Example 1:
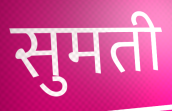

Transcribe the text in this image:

सुमती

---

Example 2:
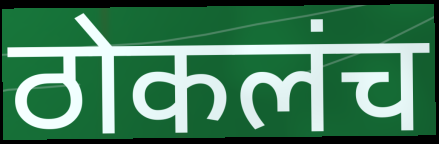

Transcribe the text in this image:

ठोकलंच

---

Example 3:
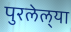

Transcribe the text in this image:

पुरलेल्या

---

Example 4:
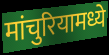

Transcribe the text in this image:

मांचुरियामध्ये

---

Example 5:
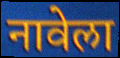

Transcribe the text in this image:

नावेला